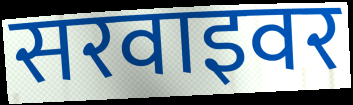
सरवाइवर